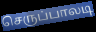
செருப்பாலடி